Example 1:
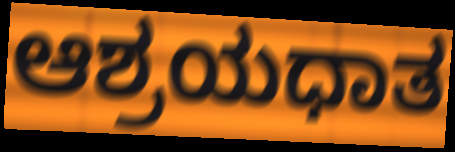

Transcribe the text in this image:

ಆಶ್ರಯಧಾತ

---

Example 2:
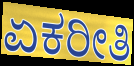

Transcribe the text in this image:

ಏಕರೀತಿ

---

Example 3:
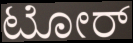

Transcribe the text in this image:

ಟೋರ್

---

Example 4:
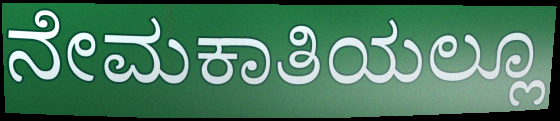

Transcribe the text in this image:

ನೇಮಕಾತಿಯಲ್ಲೂ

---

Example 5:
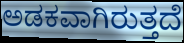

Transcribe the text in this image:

ಅಡಕವಾಗಿರುತ್ತದೆ